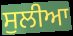
ਸੁਲੀਆ